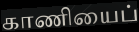
காணியைப்